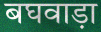
बघवाड़ा